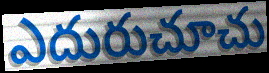
ఎదురుచూచు